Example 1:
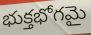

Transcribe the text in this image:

భుక్తభోగమై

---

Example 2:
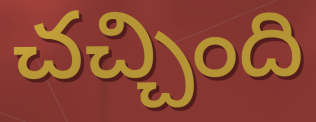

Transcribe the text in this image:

చచ్చింది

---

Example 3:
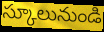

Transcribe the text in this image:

స్కూలునుండి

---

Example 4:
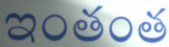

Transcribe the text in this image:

ఇంతంత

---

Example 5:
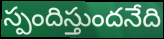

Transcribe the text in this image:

స్పందిస్తుందనేది